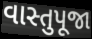
વાસ્તુપૂજા